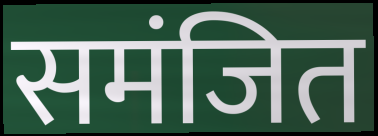
समंजित